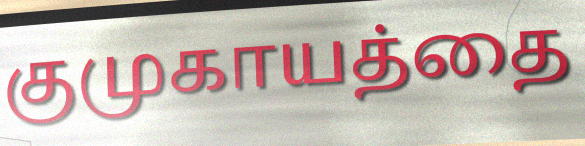
குமுகாயத்தை